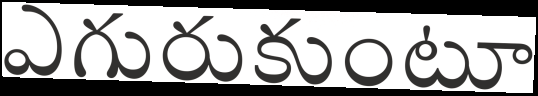
ఎగురుకుంటూ